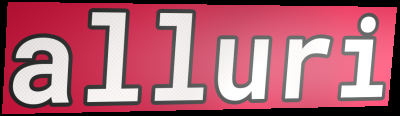
alluri